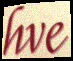
hve